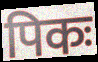
पिकः